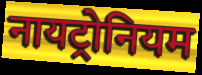
नायट्रोनियम